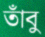
তাঁবু